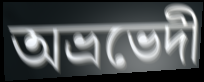
অভ্রভেদী